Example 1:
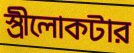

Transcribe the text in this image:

স্ত্রীলোকটার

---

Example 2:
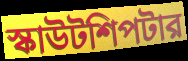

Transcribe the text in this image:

স্কাউটশিপটার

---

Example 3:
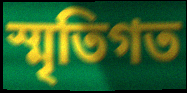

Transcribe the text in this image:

স্মৃতিগত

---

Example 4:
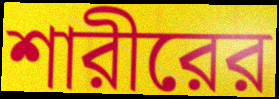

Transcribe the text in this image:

শারীরের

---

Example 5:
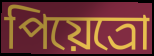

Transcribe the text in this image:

পিয়েত্রো